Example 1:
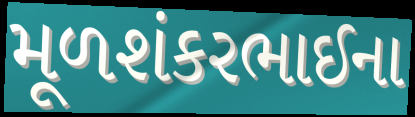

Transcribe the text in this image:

મૂળશંકરભાઈના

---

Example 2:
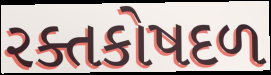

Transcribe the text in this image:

રક્તકોષદળ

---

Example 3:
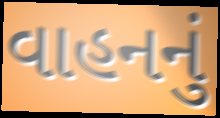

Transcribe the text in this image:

વાહનનું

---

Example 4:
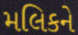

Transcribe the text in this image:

મલિકને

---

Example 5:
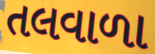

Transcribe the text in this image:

તલવાળા